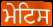
ਮੇਟਿਸ